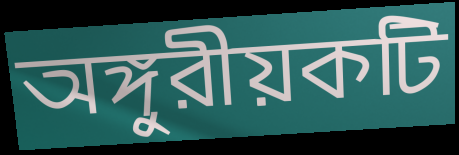
অঙ্গুরীয়কটি